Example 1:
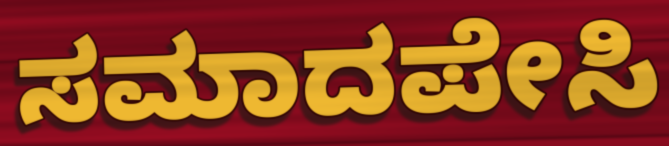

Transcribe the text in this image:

ಸಮಾದಪೇಸಿ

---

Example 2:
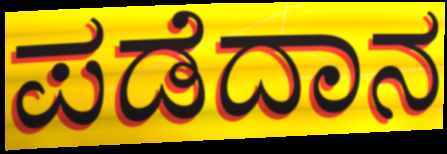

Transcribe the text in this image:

ಪಡೆದಾನ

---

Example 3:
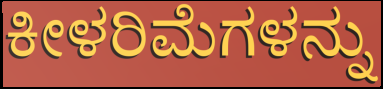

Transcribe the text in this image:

ಕೀಳರಿಮೆಗಳನ್ನು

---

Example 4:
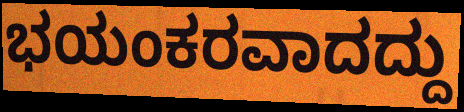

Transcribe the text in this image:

ಭಯಂಕರವಾದದ್ದು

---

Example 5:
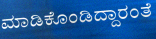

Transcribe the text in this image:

ಮಾಡಿಕೊಂಡಿದ್ದಾರಂತೆ